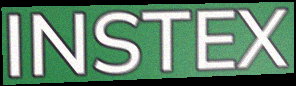
INSTEX